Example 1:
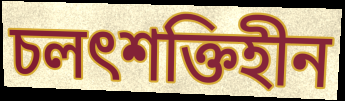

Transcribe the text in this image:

চলৎশক্তিহীন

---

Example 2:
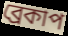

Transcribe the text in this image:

ব্রেকাপ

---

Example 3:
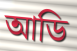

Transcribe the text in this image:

আডি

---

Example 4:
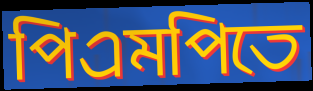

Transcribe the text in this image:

পিএমপিতে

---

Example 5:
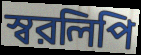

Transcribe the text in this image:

স্বরলিপি